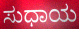
ಸುಧಾಯ